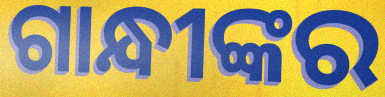
ଗାନ୍ଧୀଙ୍କର